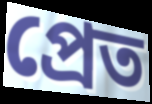
প্রেত